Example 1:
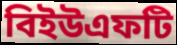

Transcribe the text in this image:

বিইউএফটি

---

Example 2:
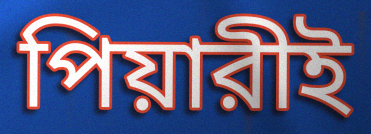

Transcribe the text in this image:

পিয়ারীই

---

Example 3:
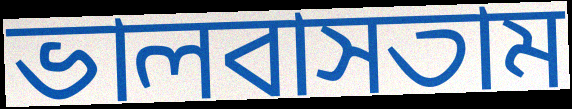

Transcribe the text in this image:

ভালবাসতাম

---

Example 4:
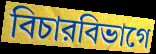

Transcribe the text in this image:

বিচারবিভাগে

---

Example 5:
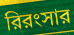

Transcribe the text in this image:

রিরংসার